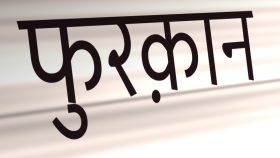
फुरक़ान